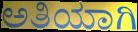
ಅತಿಯಾಗಿ